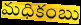
మధికంబు